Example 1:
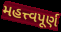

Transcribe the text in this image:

મહત્ત્વપૂર્ણ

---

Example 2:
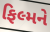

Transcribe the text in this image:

ફિલ્મને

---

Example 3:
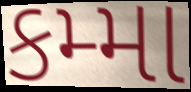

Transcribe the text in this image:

કમ્મા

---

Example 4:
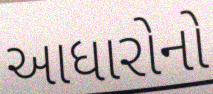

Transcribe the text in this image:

આધારોનો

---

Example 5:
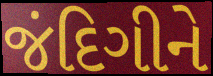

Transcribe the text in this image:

જંદિગીને